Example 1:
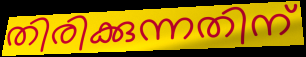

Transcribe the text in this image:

തിരിക്കുന്നതിന്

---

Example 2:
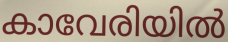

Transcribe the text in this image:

കാവേരിയിൽ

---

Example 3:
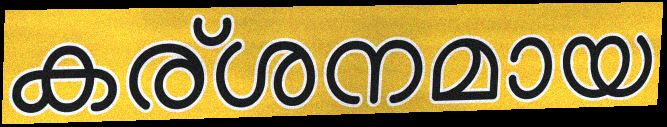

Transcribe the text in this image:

കര്ശനമായ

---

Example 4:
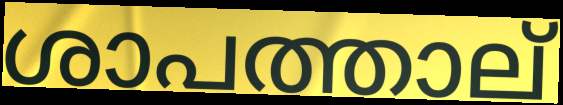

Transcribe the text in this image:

ശാപത്താല്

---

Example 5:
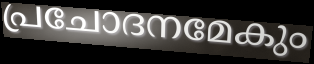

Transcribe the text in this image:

പ്രചോദനമേകും